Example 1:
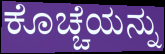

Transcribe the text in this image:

ಕೊಚ್ಚೆಯನ್ನು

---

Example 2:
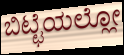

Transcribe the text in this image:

ಬಿಟ್ಟೆಯಲ್ಲೋ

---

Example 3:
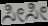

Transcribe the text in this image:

ಸೀಸೀ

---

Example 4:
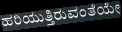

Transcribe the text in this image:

ಹರಿಯುತ್ತಿರುವಂತೆಯೇ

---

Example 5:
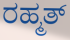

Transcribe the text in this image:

ರಹ್ಮತ್